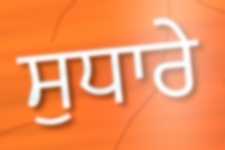
ਸੁਧਾਰੇ